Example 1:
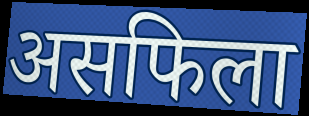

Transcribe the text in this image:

असफिला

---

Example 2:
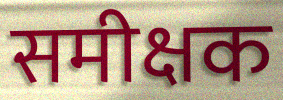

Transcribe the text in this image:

समीक्षक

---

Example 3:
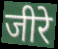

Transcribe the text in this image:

जीरे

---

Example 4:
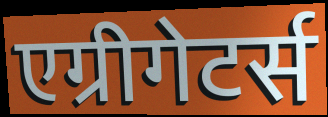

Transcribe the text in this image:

एग्रीगेटर्स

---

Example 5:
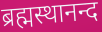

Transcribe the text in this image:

ब्रह्मस्थानन्द